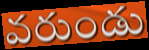
వరుండు